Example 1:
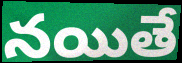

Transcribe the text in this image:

నయితే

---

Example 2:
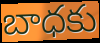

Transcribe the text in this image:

బాధకు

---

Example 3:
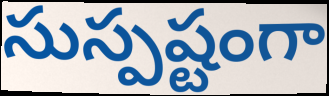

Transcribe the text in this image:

సుస్పష్టంగా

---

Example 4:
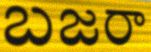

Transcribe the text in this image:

బజరా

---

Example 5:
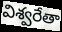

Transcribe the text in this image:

విశ్వరేతా